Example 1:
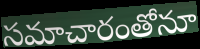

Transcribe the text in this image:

సమాచారంతోనూ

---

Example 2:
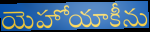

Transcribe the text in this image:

యెహోయాకీను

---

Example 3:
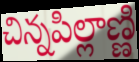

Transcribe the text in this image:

చిన్నపిల్లాణ్ణి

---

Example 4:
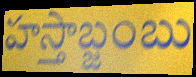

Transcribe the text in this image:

హస్తాబ్జంబు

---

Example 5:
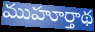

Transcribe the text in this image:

ముహూర్తాథ